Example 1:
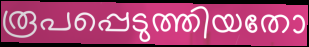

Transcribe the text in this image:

രൂപപ്പെടുത്തിയതോ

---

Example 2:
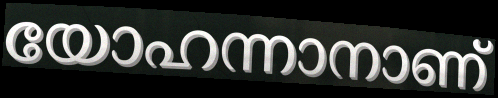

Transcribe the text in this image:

യോഹന്നാനാണ്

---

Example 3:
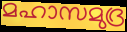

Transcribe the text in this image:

മഹാസമുദ്ര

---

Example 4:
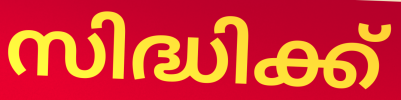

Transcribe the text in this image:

സിദ്ധിക്ക്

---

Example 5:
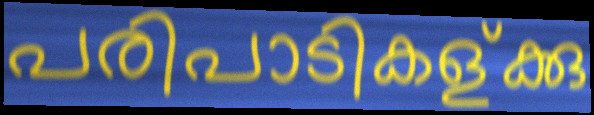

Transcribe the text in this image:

പരിപാടികള്ക്കു